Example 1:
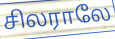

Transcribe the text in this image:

சிலராலே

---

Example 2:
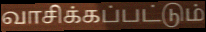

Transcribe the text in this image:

வாசிக்கப்பட்டும்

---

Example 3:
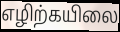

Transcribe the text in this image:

எழிற்கயிலை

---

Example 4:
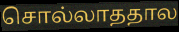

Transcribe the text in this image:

சொல்லாததால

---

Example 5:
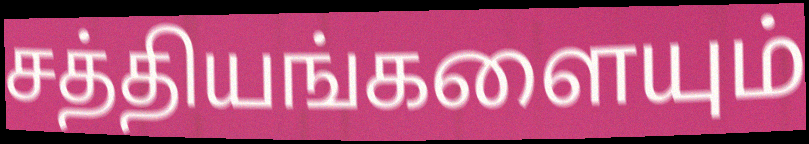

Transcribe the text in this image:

சத்தியங்களையும்